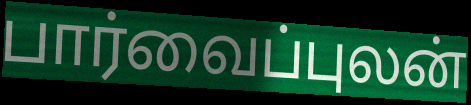
பார்வைப்புலன்